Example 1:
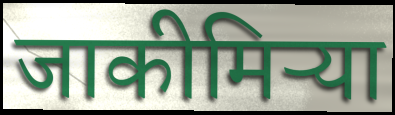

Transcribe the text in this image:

जाकीमिऱ्या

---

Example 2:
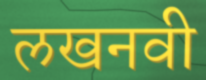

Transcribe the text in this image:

लखनवी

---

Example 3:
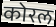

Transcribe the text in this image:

कोरल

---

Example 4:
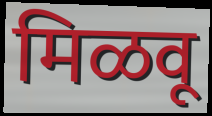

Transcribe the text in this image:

मिळवू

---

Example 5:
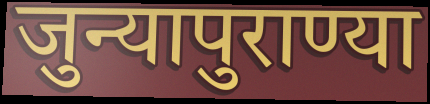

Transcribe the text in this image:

जुन्यापुराण्या